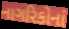
નાગરિકોનાં